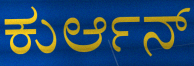
ಕುರ್ಆನ್